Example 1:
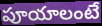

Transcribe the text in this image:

పూయాలంటే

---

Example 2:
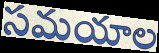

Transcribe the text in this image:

సమయాల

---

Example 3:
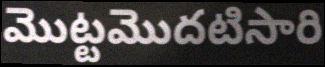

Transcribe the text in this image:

మొట్టమొదటిసారి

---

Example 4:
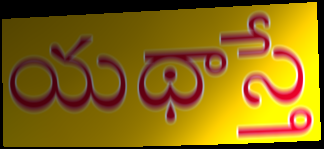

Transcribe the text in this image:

యథాస్తే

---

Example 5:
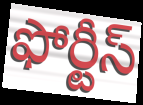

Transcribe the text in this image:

ఫోర్టీస్